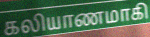
கலியாணமாகி